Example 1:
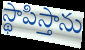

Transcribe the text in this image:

స్థాపిస్తాను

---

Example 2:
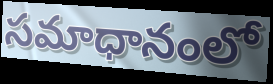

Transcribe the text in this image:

సమాధానంలో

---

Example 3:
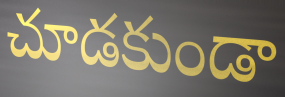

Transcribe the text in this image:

చూడకుండా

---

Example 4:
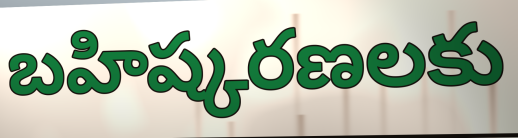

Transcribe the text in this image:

బహిష్కరణలకు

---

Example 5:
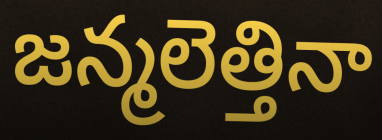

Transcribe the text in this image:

జన్మలెత్తినా